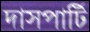
দাসপার্টি